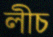
লীচ